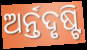
ଅର୍ନ୍ତଦୃଷ୍ଟି